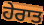
ਹੇਰਾਤ